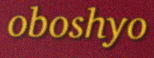
oboshyo